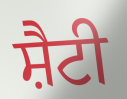
ਸ਼ੈਟੀ